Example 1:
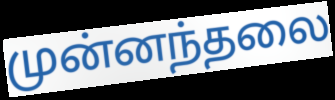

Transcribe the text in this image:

முன்னந்தலை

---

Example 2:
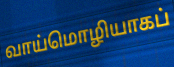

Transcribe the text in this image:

வாய்மொழியாகப்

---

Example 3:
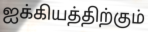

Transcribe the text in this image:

ஐக்கியத்திற்கும்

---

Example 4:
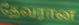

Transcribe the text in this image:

தேவரான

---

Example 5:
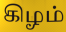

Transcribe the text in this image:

கிழம்